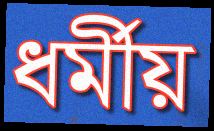
ধৰ্মীয়